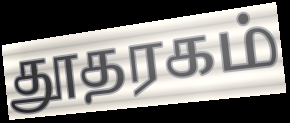
தூதரகம்